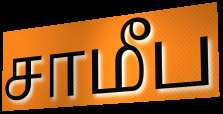
சாமீப